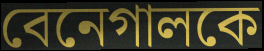
বেনেগালকে